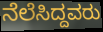
ನೆಲೆಸಿದ್ದವರು